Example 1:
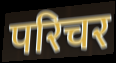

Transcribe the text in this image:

परिचर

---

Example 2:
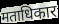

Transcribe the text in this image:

मताधिकार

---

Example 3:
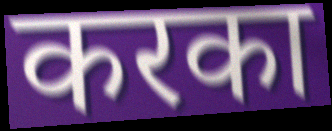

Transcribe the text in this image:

करका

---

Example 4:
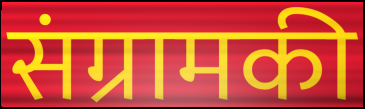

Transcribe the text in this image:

संग्रामकी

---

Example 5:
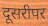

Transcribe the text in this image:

दूसरीपर